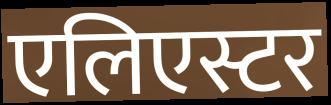
एलिएस्टर